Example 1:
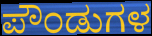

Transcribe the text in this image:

ಪೌಂಡುಗಳ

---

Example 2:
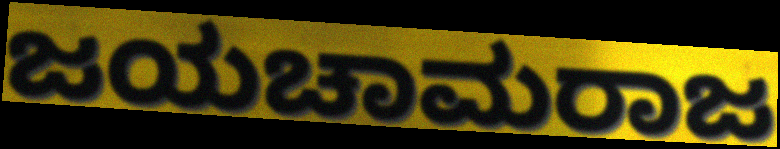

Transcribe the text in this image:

ಜಯಚಾಮರಾಜ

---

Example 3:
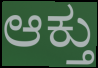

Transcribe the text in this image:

ಆಕ್ತು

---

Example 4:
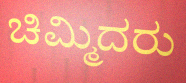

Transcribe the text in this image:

ಚಿಮ್ಮಿದರು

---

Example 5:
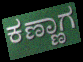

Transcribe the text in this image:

ಕಣ್ಣಾಗ